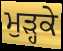
ਮੁੜ੍ਹਕੇ